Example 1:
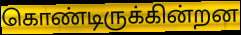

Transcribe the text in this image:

கொண்டிருக்கின்றன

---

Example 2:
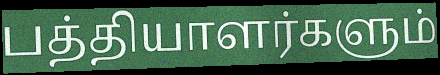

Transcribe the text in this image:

பத்தியாளர்களும்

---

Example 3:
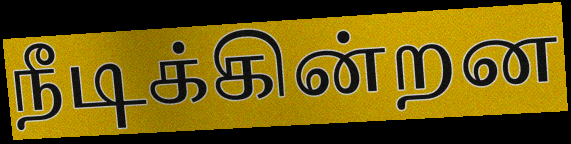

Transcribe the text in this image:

நீடிக்கின்றன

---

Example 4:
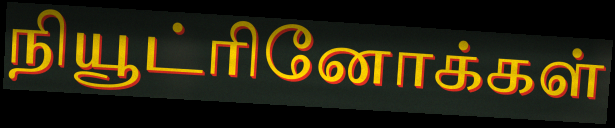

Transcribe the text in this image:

நியூட்ரினோக்கள்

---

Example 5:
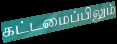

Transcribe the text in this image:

கட்டமைப்பிலும்